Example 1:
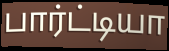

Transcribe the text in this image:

பார்ட்டியா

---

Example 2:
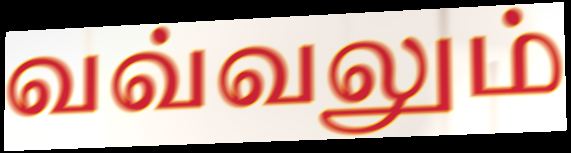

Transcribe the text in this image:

வவ்வலும்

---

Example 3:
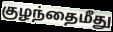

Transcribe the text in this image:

குழந்தைமீது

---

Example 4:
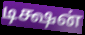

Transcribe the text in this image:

டிக்ஷன்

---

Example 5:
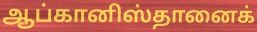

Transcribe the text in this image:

ஆப்கானிஸ்தானைக்